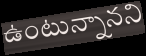
ఉంటున్నానని